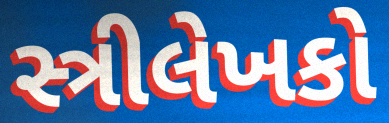
સ્ત્રીલેખકો